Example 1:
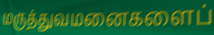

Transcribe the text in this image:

மருத்துவமனைகளைப்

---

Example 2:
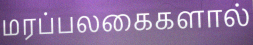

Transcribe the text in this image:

மரப்பலகைகளால்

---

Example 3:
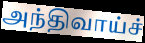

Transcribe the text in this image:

அந்திவாய்ச்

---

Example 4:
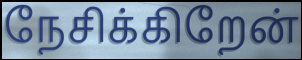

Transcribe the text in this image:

நேசிக்கிறேன்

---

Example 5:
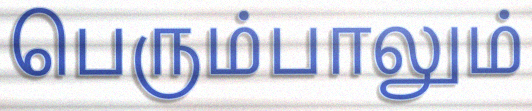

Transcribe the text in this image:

பெரும்பாலும்